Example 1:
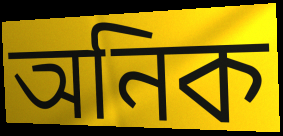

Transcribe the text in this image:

অনিক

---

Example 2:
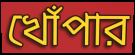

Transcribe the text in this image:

খোঁপার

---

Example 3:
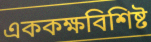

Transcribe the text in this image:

এককক্ষবিশিষ্ট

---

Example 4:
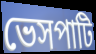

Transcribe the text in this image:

ভেসপাটি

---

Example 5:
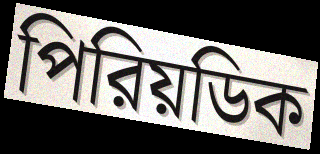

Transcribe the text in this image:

পিরিয়ডিক